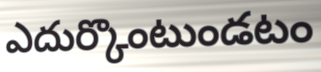
ఎదుర్కొంటుండటం